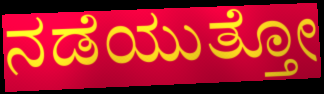
ನಡೆಯುತ್ತೋ